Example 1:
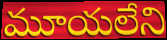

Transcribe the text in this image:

మూయలేని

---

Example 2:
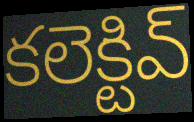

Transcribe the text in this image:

కలెక్టివ్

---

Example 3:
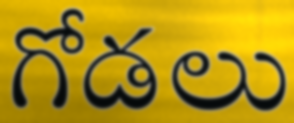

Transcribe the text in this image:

గోడలు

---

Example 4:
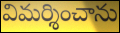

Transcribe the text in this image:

విమర్శించాను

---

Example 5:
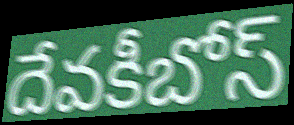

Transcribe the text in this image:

దేవకీబోస్